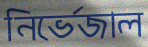
নিৰ্ভেজাল